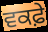
ਵਕਫ਼ੇ